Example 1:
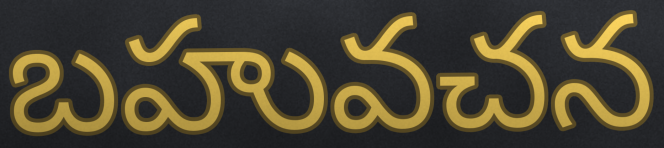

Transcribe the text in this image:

బహువచన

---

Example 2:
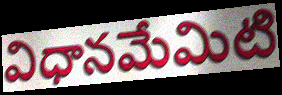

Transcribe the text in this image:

విధానమేమిటి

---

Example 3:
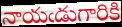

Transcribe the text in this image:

నాయఁడుగారికి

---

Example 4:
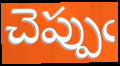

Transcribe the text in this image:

చెప్పుఁ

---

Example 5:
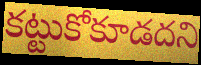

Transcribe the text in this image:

కట్టుకోకూడదని